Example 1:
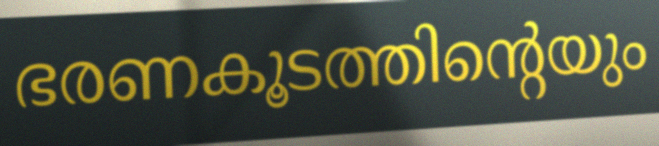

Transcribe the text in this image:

ഭരണകൂടത്തിന്റെയും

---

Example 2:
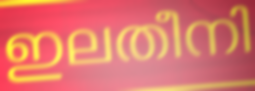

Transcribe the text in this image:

ഇലതീനി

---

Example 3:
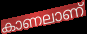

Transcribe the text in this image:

കാണലാണ്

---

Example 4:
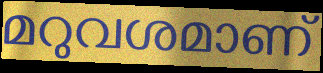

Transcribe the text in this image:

മറുവശമാണ്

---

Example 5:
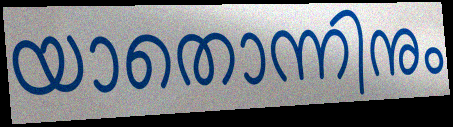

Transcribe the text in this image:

യാതൊന്നിനും